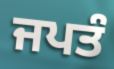
ਜਪਤੰ